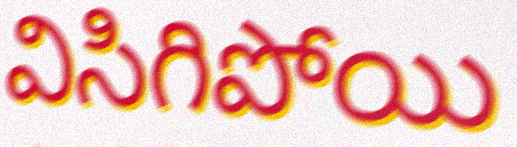
విసిగిపోయి